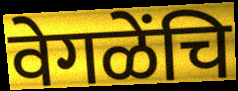
वेगळेंचि